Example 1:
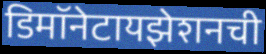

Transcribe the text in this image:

डिमॉनेटायझेशनची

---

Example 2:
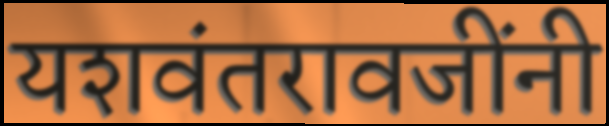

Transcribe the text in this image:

यशवंतरावजींनी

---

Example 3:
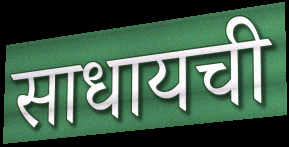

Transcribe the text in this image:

साधायची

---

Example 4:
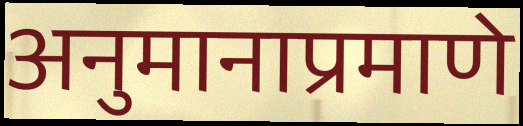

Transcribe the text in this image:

अनुमानाप्रमाणे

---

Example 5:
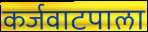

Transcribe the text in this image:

कर्जवाटपाला